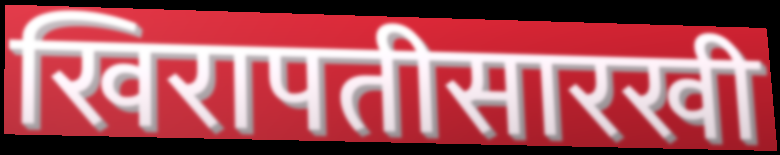
खिरापतीसारखी